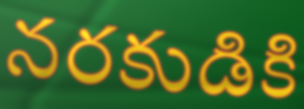
నరకుడికి